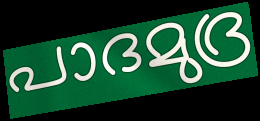
പാദമുദ്ര